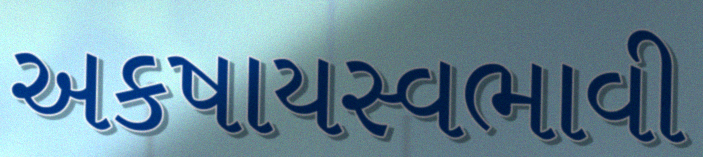
અકષાયસ્વભાવી